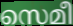
സെമീ